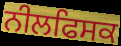
ਨੀਲਫਿਸਕ